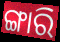
ଙ୍ଗାରି